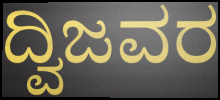
ದ್ವಿಜವರ